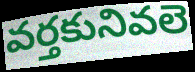
వర్తకునివలె